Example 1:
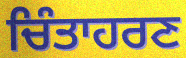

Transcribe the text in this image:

ਚਿੰਤਾਹਰਣ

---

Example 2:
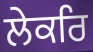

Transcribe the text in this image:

ਲੇਕਰਿ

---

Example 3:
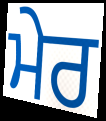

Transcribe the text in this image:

ਮੇਰ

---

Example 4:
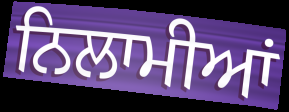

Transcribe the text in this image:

ਨਿਲਾਮੀਆਂ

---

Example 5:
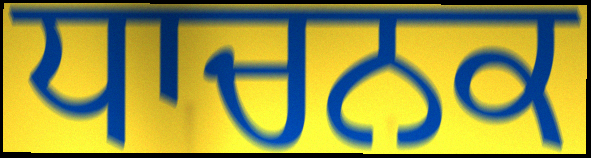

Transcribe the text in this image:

ਧਾਚਨਕ